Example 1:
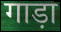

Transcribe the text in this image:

गाड़ा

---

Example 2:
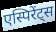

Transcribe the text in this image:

एस्पिरेंट्स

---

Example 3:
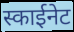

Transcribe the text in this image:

स्काईनेट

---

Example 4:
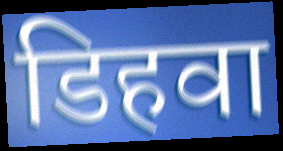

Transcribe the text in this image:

डिहवा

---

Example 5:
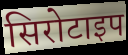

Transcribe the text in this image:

सिरोटाइप